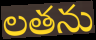
లతను